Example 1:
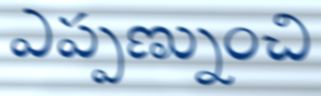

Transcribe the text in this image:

ఎప్పణ్నుంచి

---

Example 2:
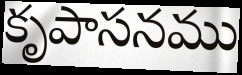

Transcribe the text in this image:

కృపాసనము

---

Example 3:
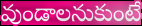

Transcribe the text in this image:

వుండాలనుకుంటే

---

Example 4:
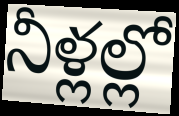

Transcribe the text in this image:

నీళ్లల్లో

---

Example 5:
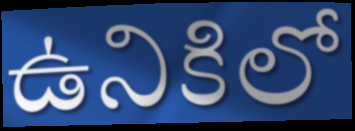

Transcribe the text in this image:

ఉనికిలో